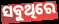
ସବୁଥିରେ